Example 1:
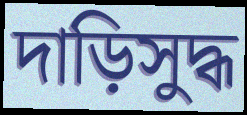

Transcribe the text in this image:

দাড়িসুদ্ধ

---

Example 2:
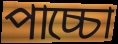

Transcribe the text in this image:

পাচ্চো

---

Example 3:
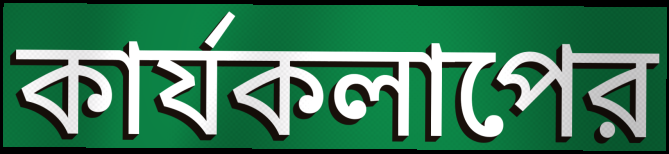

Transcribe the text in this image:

কার্যকলাপের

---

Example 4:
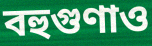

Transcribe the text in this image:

বহুগুণাও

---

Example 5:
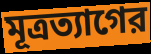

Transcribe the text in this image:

মূত্রত্যাগের